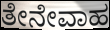
ತೇನೇವಾಹ